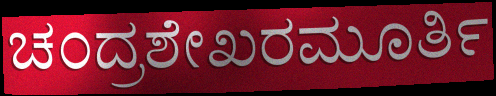
ಚಂದ್ರಶೇಖರಮೂರ್ತಿ